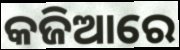
କଜିଆରେ